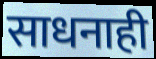
साधनाही